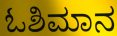
ಓಶಿಮಾನ